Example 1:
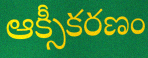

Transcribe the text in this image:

ఆక్సీకరణం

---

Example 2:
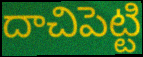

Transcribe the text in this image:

దాచిపెట్టి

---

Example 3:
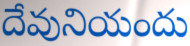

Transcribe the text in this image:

దేవునియందు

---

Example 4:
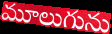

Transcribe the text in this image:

మూలుగును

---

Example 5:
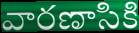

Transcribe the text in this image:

వారణాసికి